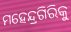
ମହେନ୍ଦ୍ରଗିରିକୁ